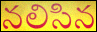
నలిసిన